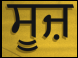
ਸੂਜ਼